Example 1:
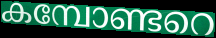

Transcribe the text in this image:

കമ്പോണ്ടറെ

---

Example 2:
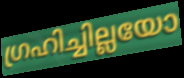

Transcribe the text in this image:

ഗ്രഹിച്ചില്ലയോ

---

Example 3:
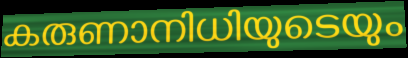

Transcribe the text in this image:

കരുണാനിധിയുടെയും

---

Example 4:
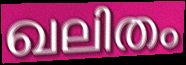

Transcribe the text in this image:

ഖലിതം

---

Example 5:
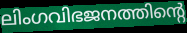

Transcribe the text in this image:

ലിംഗവിഭജനത്തിന്റെ